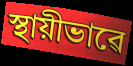
স্থায়ীভাৱে